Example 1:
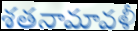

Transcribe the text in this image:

శతనామావళీ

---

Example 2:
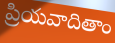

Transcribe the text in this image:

ప్రియవాదితాం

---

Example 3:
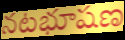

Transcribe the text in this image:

నటభూషణ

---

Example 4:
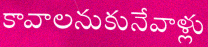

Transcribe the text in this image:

కావాలనుకునేవాళ్లు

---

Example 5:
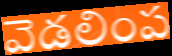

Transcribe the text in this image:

వెడలింప